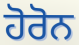
ਹੋਰੋਨ